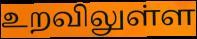
உறவிலுள்ள